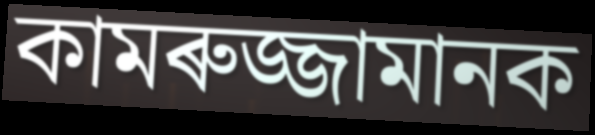
কামৰুজ্জামানক